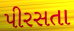
પીરસતા